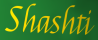
Shashti